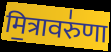
मि॒त्रावरु॑णा